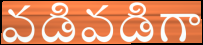
వడివడిగా